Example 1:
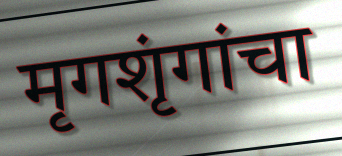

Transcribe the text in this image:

मृगशृंगांचा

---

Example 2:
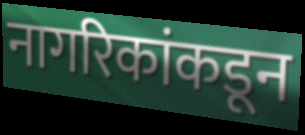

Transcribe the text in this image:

नागरिकांकडून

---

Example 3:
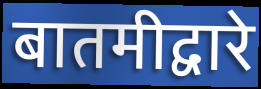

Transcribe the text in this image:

बातमीद्वारे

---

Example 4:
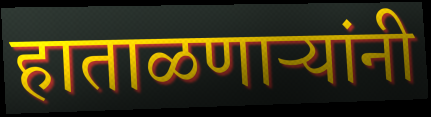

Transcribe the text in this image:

हाताळणाऱ्यांनी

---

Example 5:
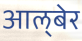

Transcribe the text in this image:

आल्बेर